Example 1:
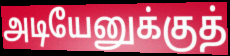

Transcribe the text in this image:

அடியேனுக்குத்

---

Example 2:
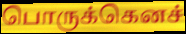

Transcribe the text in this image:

பொருக்கெனச்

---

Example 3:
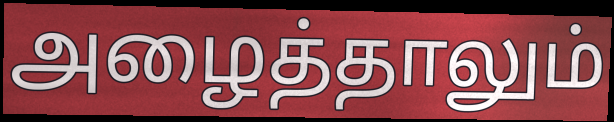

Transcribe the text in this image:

அழைத்தாலும்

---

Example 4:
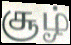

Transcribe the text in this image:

சூழ்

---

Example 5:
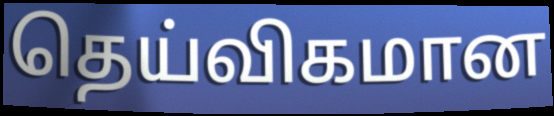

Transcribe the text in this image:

தெய்விகமான